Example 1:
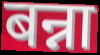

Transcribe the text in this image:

बन्ना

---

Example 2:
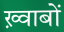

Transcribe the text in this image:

ख़्वाबों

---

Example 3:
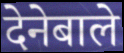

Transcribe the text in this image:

देनेबाले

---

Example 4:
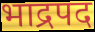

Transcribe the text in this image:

भाद्रपद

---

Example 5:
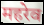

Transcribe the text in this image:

महरेव